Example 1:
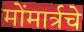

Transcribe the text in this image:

मोंमार्त्रचे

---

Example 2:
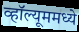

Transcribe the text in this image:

व्हॉल्यूममध्ये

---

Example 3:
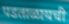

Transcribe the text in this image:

पडताळायची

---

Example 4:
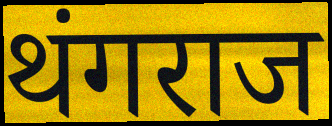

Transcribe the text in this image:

थंगराज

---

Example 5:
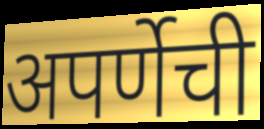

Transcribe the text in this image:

अपर्णेची